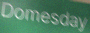
Domesday